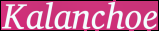
Kalanchoe